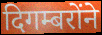
दिगम्बरोंने